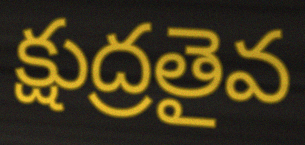
క్షుద్రతైవ